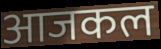
आजकल